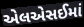
એલએસઈમાં